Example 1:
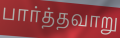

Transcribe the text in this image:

பார்த்தவாறு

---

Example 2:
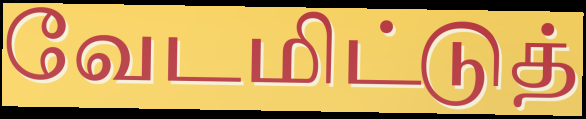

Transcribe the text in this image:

வேடமிட்டுத்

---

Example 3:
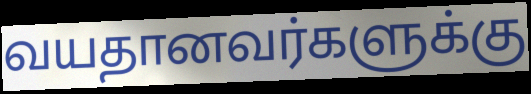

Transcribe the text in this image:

வயதானவர்களுக்கு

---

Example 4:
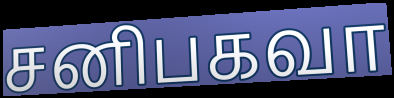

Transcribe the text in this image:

சனிபகவா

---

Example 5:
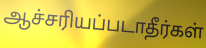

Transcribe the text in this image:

ஆச்சரியப்படாதீர்கள்